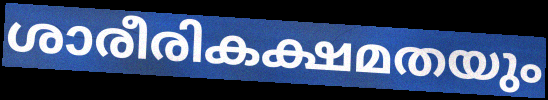
ശാരീരികക്ഷമതയും